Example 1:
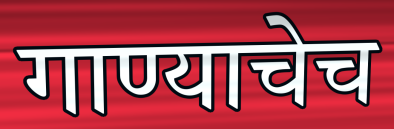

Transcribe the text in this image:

गाण्याचेच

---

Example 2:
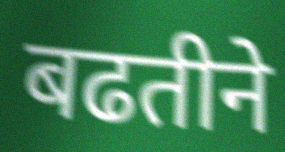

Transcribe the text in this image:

बढतीने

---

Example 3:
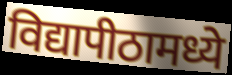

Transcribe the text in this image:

विद्यापीठामध्ये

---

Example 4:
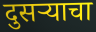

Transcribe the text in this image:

दुसऱ्याचा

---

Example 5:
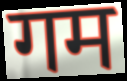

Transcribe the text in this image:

गम